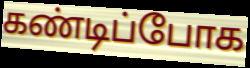
கண்டிப்போக